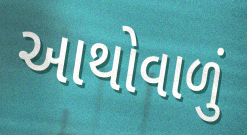
આથોવાળું